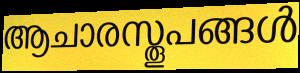
ആചാരസ്തൂപങ്ങൾ